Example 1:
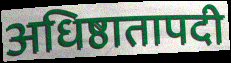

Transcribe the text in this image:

अधिष्ठातापदी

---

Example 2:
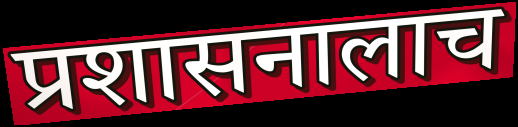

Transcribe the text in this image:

प्रशासनालाच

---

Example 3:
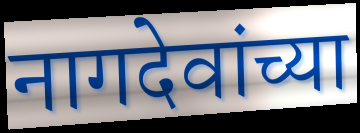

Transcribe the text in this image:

नागदेवांच्या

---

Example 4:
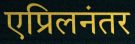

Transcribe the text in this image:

एप्रिलनंतर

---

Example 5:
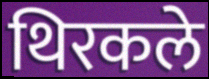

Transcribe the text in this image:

थिरकले